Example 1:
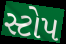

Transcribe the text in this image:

સ્ટોપ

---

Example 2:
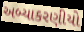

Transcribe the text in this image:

અબ્યાકરણીયો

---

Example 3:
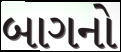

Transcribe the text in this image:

બાગનો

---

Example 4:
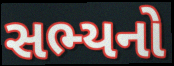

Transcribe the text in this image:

સભ્યનો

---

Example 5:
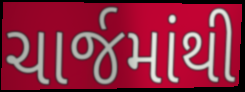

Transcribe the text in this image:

ચાર્જમાંથી